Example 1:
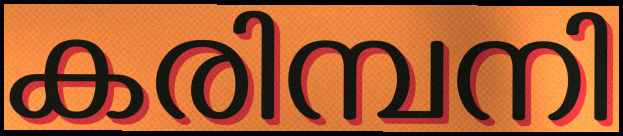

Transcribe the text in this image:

കരിമ്പനി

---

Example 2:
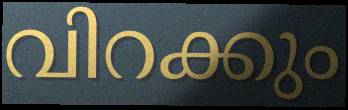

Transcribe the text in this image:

വിറക്കും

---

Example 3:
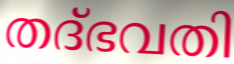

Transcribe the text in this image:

തദ്ഭവതി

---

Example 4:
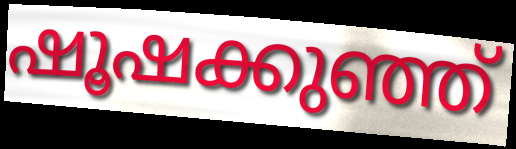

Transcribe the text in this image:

ഷൂഷക്കുഞ്ഞ്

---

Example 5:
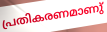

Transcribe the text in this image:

പ്രതികരണമാണു്